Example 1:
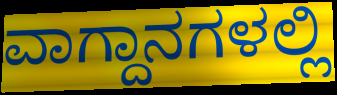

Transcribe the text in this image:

ವಾಗ್ದಾನಗಳಲ್ಲಿ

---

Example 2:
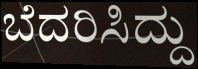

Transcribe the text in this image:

ಬೆದರಿಸಿದ್ದು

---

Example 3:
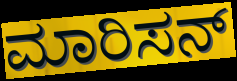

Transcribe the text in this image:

ಮಾರಿಸನ್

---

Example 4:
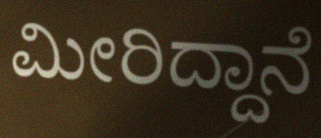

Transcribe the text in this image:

ಮೀರಿದ್ದಾನೆ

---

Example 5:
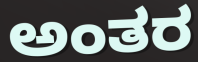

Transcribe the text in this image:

ಅಂತರ